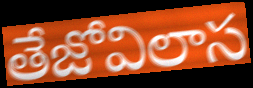
తేజోవిలాస